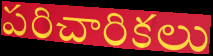
పరిచారికలు